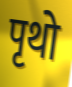
पृथो